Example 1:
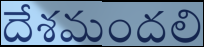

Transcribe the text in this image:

దేశమందలి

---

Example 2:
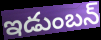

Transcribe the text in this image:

ఇడుంబన్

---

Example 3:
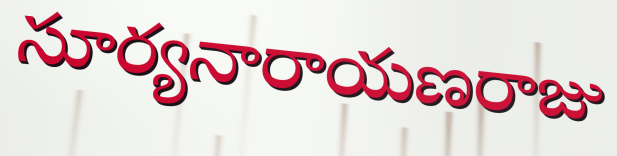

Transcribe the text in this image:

సూర్యనారాయణరాజు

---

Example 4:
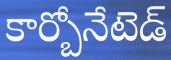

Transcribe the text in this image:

కార్బోనేటెడ్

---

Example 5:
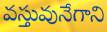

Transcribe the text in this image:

వస్తువునేగాని